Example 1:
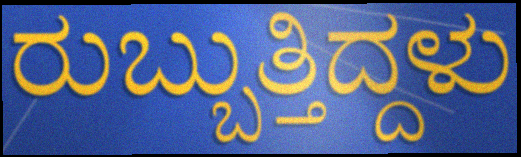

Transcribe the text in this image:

ರುಬ್ಬುತ್ತಿದ್ದಳು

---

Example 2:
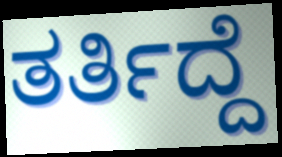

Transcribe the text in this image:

ತರ್ತಿದ್ದೆ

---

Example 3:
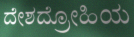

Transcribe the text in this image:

ದೇಶದ್ರೋಹಿಯ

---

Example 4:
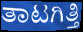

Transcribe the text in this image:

ತಾಟಗಿತ್ತಿ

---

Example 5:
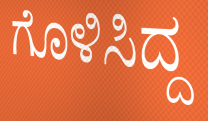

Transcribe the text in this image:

ಗೊಳಿಸಿದ್ದ